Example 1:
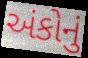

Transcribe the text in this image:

અંકોનું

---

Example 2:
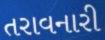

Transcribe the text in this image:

તરાવનારી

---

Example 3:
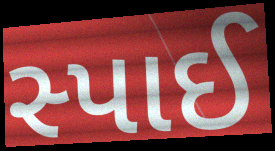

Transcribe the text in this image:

સ્પાઈ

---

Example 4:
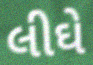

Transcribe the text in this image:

લીઘે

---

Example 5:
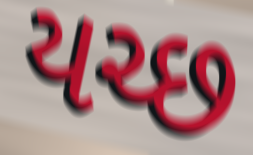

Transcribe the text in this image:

યચ્છ